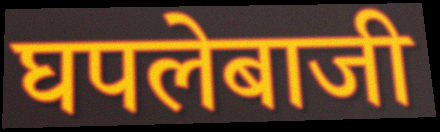
घपलेबाजी